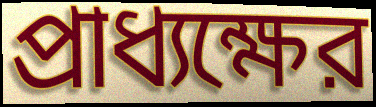
প্রাধ্যক্ষের